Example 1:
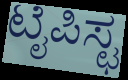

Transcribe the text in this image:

ಟೈಪಿಸ್ಟ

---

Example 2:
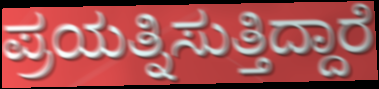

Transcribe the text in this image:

ಪ್ರಯತ್ನಿಸುತ್ತಿದ್ದಾರೆ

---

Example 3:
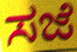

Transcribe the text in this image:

ಸಜೆ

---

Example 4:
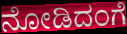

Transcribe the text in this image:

ನೋಡಿದಂಗೆ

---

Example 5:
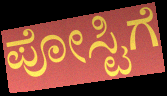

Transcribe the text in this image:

ಪೋಸ್ಟಿಗೆ